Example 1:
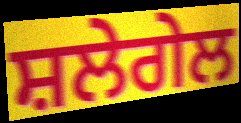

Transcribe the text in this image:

ਸ਼ਲੇਗੇਲ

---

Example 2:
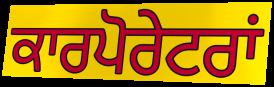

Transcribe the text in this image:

ਕਾਰਪੋਰੇਟਰਾਂ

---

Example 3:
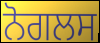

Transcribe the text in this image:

ਨੋਗਲਸ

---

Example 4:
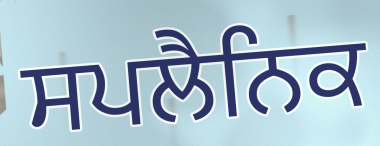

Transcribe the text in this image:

ਸਪਲੈਨਿਕ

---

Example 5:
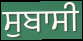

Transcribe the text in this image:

ਸੁਬਾਸੀ